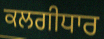
ਕਲਗੀਧਾਰ